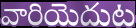
వారియెదుట